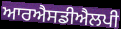
ਆਰਐਸਡੀਐਲਪੀ